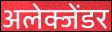
अलेक्जेंडर